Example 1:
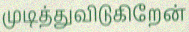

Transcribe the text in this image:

முடித்துவிடுகிறேன்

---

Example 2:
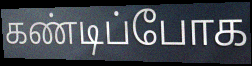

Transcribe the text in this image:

கண்டிப்போக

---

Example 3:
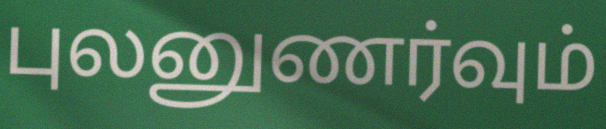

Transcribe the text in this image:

புலனுணர்வும்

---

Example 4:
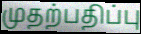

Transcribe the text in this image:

முதற்பதிப்பு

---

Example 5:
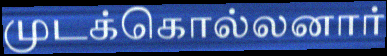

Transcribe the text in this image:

முடக்கொல்லனார்